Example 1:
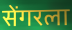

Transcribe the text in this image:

सेंगरला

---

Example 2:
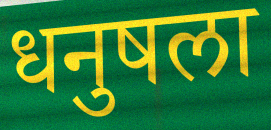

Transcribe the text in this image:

धनुषला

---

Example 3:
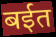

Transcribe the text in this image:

बईत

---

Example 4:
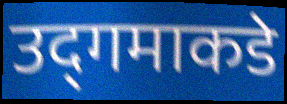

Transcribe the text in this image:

उद्‌गमाकडे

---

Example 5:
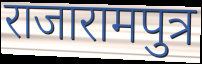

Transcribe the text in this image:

राजारामपुत्र